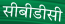
सीबीडीसी